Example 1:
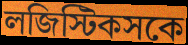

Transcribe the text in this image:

লজিস্টিকসকে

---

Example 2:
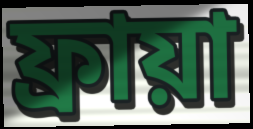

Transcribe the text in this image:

ফ্রায়া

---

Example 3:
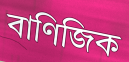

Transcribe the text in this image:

বাণিজিক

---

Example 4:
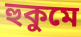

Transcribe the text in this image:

হুকুমে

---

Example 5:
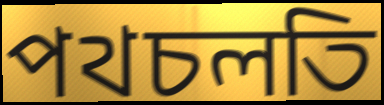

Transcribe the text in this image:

পথচলতি